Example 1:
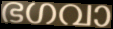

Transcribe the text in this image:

ഭഗവാ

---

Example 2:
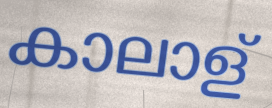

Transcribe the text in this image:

കാലാള്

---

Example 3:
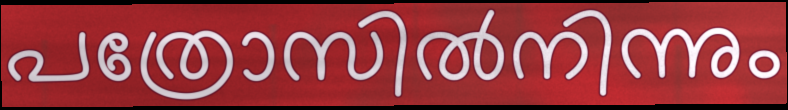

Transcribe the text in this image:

പത്രോസിൽനിന്നും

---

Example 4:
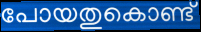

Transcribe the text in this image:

പോയതുകൊണ്ട്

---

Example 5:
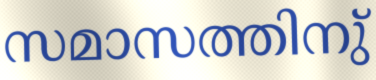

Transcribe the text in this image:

സമാസത്തിനു്